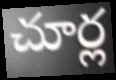
చూర్ల